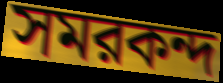
সমরকন্দ